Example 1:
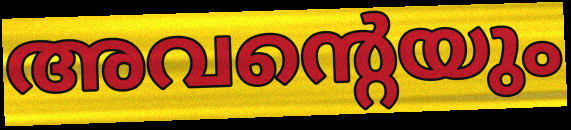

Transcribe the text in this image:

അവന്റെയും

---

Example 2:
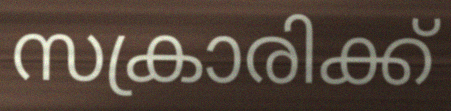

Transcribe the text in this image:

സക്രാരിക്ക്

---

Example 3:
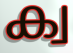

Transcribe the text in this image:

ക്വ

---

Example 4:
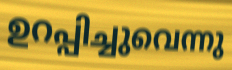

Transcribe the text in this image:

ഉറപ്പിച്ചുവെന്നു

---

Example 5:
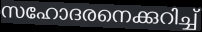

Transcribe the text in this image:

സഹോദരനെക്കുറിച്ച്